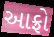
આફ્રો